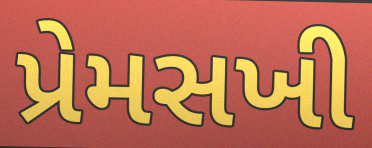
પ્રેમસખી